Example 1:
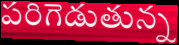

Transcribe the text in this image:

పరిగెడుతున్న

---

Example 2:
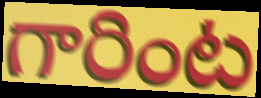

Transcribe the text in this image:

గారింట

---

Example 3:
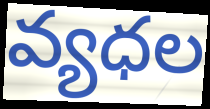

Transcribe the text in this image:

వ్యధల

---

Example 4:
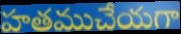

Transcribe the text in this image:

హతముచేయగా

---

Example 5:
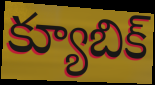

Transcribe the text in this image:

క్యూబిక్